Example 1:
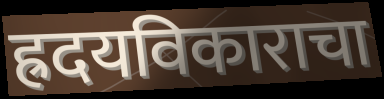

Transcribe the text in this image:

ह्रदयविकाराचा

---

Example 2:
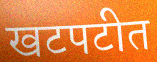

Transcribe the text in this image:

खटपटीत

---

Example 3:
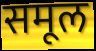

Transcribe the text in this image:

समूल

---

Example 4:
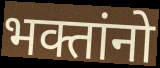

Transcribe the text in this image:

भक्तांनो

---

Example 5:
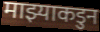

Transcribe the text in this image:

माझ्याकडुन